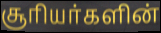
சூரியர்களின்